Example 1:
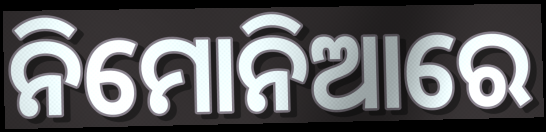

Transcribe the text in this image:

ନିମୋନିଆରେ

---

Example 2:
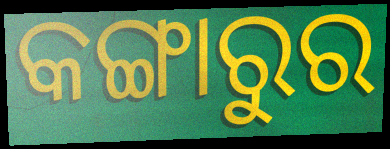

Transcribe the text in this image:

କଙ୍ଗାରୁର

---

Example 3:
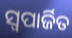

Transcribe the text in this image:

ସ୍ଵପାର୍ଜିତ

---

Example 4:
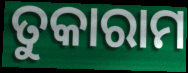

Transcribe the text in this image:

ତୁକାରାମ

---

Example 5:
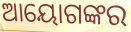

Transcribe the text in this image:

ଆୟୋଗଙ୍କର